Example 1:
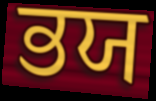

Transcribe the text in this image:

ਭਯ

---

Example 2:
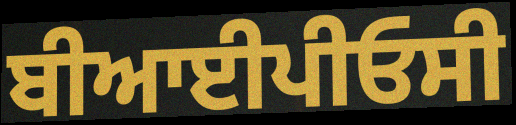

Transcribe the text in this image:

ਬੀਆਈਪੀਓਸੀ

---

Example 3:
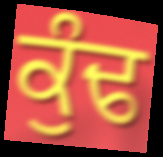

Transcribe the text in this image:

ਕੁੰਢ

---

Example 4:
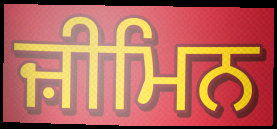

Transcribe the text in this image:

ਜ਼ੀਮਿਨ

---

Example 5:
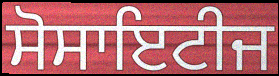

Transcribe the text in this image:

ਸੋਸਾਇਟੀਜ